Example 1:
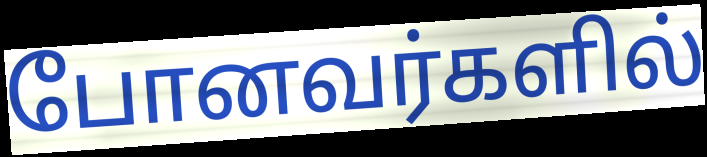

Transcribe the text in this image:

போனவர்களில்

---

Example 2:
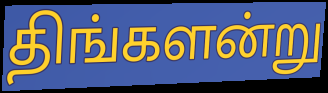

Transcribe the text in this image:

திங்களன்று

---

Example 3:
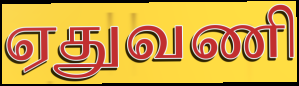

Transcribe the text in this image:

ஏதுவணி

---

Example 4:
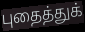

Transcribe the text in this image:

புதைத்துக்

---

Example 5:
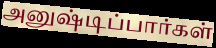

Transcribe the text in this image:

அனுஷ்டிப்பார்கள்